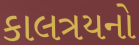
કાલત્રયનો